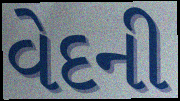
વેદની